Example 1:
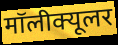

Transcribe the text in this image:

मॉलीक्यूलर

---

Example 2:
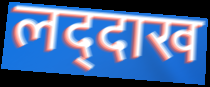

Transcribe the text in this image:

लद्‌दाख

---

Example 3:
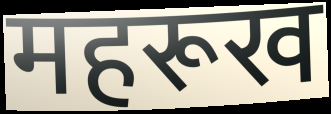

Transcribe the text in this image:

महरूख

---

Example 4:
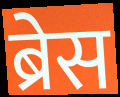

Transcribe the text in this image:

ब्रेस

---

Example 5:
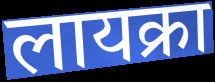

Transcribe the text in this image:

लायक्रा